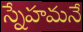
స్నేహమనే